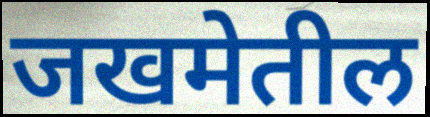
जखमेतील